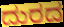
ದುರದ